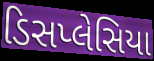
ડિસપ્લેસિયા